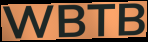
WBTB